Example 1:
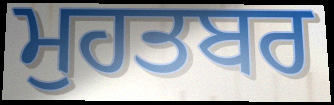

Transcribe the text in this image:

ਮੁਹਤਬਰ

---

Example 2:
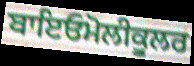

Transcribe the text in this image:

ਬਾਇਓਮੋਲੀਕੂਲਰ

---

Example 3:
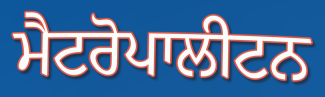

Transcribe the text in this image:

ਮੈਟਰੋਪਾਲੀਟਨ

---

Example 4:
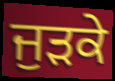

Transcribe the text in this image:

ਜੁੜਕੇ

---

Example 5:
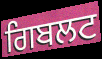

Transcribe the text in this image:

ਗਿਬਲਟ